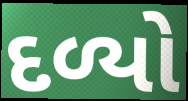
દળ્યો